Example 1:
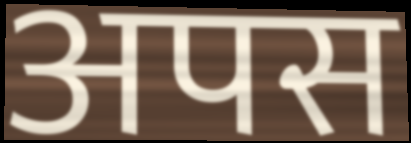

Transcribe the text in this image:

अपस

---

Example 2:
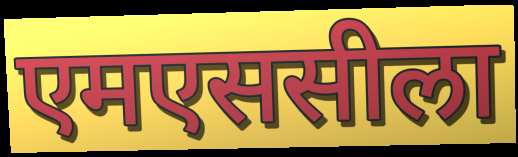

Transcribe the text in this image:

एमएससीला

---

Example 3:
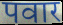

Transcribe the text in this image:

पवार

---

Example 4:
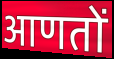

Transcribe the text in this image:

आणतों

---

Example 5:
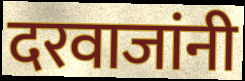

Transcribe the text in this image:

दरवाजांनी